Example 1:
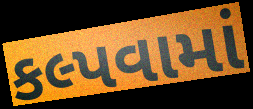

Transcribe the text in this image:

કલ્પવામાં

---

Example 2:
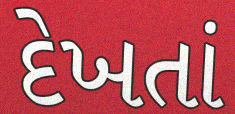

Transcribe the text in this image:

દેખતાં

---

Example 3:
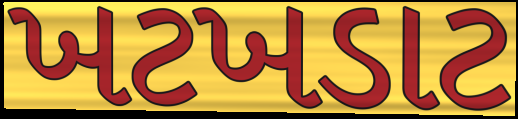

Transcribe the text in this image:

ખટખડાટ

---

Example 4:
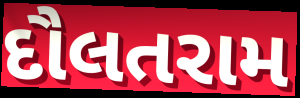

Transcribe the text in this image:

દૌલતરામ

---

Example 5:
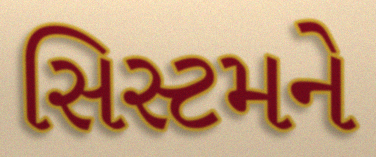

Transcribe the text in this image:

સિસ્ટમને